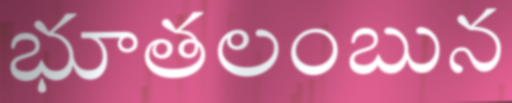
భూతలంబున